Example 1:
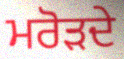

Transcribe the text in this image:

ਮਰੋੜਦੇ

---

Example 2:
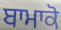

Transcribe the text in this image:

ਬਾਮਾਕੋ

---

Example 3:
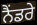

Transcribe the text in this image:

ਨੈਂਡਰੇ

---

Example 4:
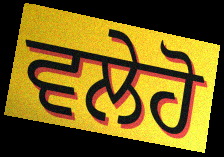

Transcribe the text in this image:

ਵਲੇਹੋ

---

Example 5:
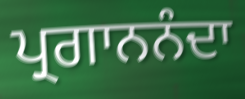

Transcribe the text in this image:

ਪ੍ਰਗਾਨਨੰਦਾ